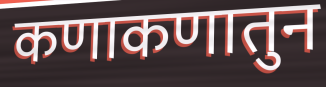
कणाकणातुन